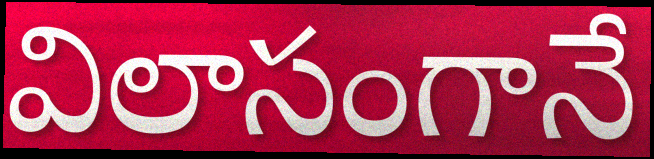
విలాసంగానే